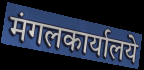
मंगलकार्यालये